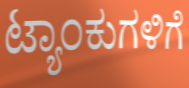
ಟ್ಯಾಂಕುಗಳಿಗೆ